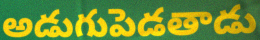
అడుగుపెడతాడు